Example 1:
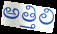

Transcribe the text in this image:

అత్తిలి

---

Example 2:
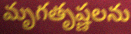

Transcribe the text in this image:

మృగతృష్ణలను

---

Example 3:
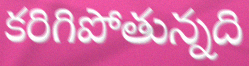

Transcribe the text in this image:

కరిగిపోతున్నది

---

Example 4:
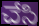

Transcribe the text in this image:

చేసి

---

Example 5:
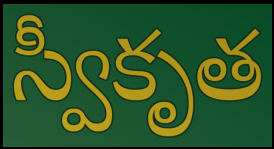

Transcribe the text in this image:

స్వీకృత